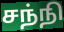
சந்நி